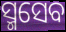
ସ୍ମସେବ